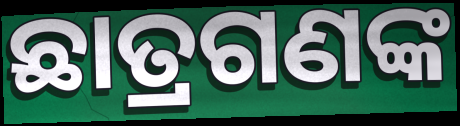
ଛାତ୍ରଗଣଙ୍କ